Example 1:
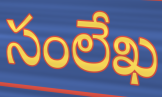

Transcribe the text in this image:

సంలేఖ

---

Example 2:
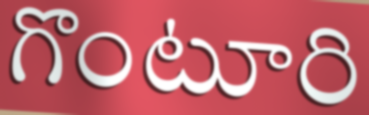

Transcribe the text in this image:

గొంటూరి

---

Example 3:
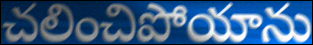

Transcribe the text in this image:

చలించిపోయాను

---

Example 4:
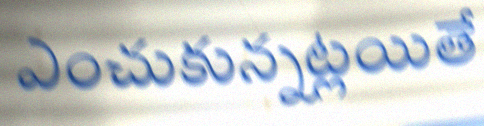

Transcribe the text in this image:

ఎంచుకున్నట్లయితే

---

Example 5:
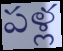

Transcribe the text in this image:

పళ్ల